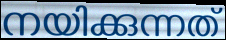
നയിക്കുന്നത്